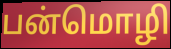
பன்மொழி